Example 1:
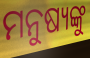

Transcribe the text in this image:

ମନୁଷ୍ୟଙ୍କୁ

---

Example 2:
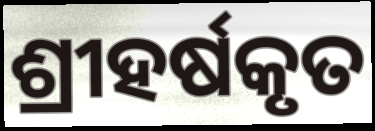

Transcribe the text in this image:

ଶ୍ରୀହର୍ଷକୃତ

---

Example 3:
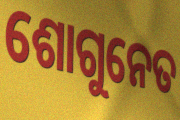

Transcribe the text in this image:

ଶୋଗୁନେତ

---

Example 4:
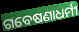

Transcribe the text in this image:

ଗବେଷଣାଧର୍ମୀ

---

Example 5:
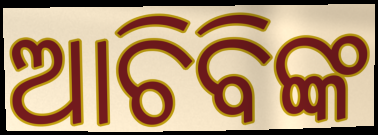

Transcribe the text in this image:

ଆଚିବିଙ୍କ